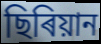
ছিৰিয়ান